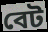
বেট